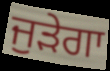
ਜੁੜੇਗਾ